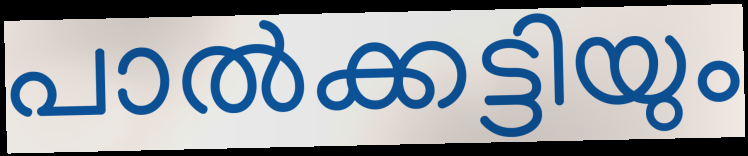
പാൽക്കട്ടിയും